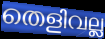
തെളിവല്ല